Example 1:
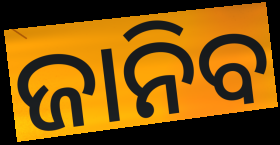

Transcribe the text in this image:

ଜାନିବ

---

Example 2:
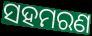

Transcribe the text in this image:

ସହମରଣ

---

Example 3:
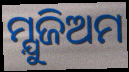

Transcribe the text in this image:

ମ୍ଯୁଜିଅମ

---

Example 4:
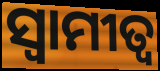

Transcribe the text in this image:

ସ୍ଵାମୀତ୍ବ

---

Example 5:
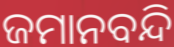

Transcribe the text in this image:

ଜମାନବନ୍ଦି